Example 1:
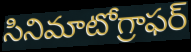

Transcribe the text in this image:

సినిమాటోగ్రాఫర్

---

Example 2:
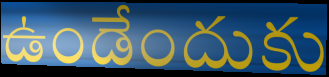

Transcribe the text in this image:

ఉండేందుకు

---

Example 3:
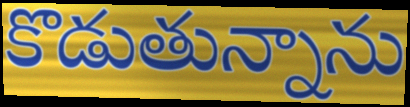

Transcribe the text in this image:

కొడుతున్నాను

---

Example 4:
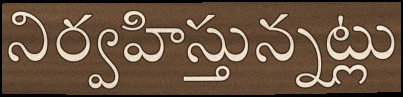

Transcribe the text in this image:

నిర్వహిస్తున్నట్లు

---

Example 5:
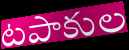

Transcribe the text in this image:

టపాకుల